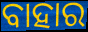
ବାହାର